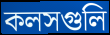
কলসগুলি